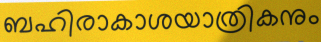
ബഹിരാകാശയാത്രികനും